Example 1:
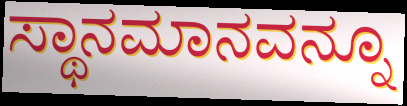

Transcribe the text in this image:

ಸ್ಥಾನಮಾನವನ್ನೂ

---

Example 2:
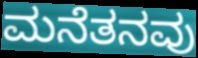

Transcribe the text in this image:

ಮನೆತನವು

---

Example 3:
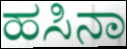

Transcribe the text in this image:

ಹಸಿನಾ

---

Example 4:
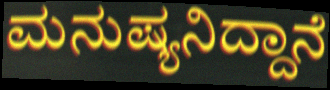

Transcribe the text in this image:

ಮನುಷ್ಯನಿದ್ದಾನೆ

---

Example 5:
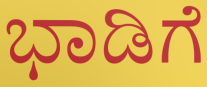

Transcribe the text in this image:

ಭಾಡಿಗೆ